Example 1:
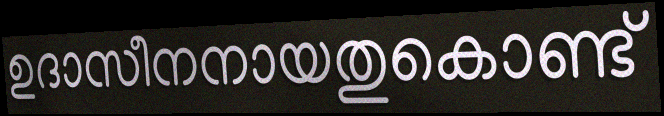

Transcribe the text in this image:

ഉദാസീനനായതുകൊണ്ട്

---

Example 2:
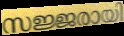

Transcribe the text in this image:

സജ്ജരായി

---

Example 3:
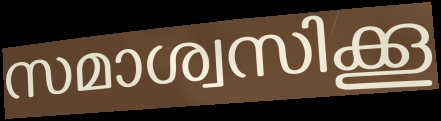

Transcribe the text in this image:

സമാശ്വസിക്കൂ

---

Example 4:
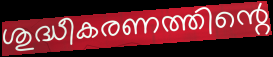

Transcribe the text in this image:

ശുദ്ധീകരണത്തിന്റെ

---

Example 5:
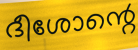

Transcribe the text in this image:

ദീശോന്റെ